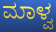
ಮಾಳ್ವ